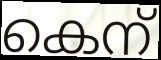
കെന്